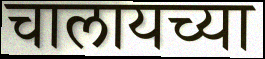
चालायच्या